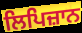
ਲਿਪਿਜ਼ਾਨ